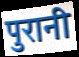
पुरानी